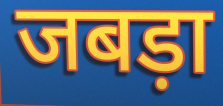
जबड़ा